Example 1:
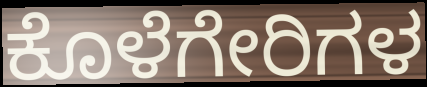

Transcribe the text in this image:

ಕೊಳೆಗೇರಿಗಳ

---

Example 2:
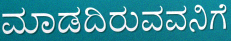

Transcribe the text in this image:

ಮಾಡದಿರುವವನಿಗೆ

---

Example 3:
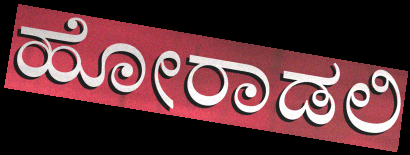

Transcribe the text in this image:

ಹೋರಾಡಲಿ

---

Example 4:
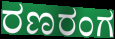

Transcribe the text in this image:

ರಣರಂಗ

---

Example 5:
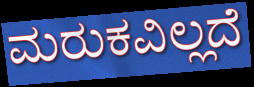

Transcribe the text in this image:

ಮರುಕವಿಲ್ಲದೆ